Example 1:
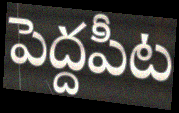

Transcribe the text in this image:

పెద్దపీట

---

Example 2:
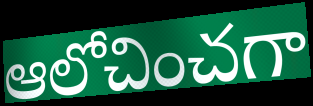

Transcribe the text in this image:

ఆలోచించగా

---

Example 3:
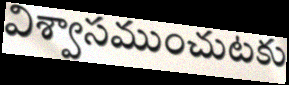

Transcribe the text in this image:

విశ్వాసముంచుటకు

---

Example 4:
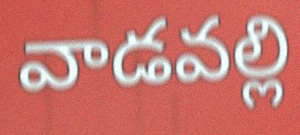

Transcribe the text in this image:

వాడవల్లి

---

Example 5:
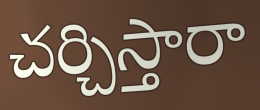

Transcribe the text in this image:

చర్చిస్తారా